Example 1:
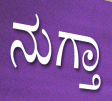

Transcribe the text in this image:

ನುಗ್ತಾ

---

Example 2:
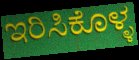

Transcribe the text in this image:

ಇರಿಸಿಕೊಳ್ಳ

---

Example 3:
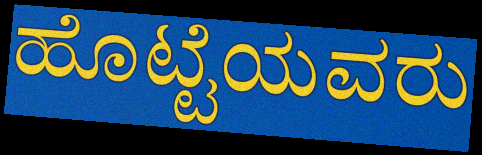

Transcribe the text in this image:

ಹೊಟ್ಟೆಯವರು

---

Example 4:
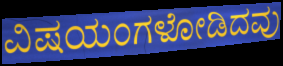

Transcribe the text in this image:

ವಿಷಯಂಗಳೋಡಿದವು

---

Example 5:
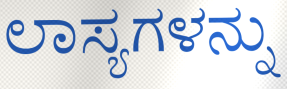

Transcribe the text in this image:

ಲಾಸ್ಯಗಳನ್ನು